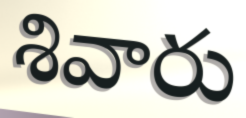
శివారు